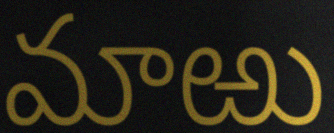
మాఱు